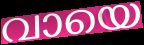
വായെ